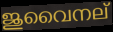
ജുവൈനല്